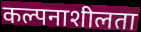
कल्पनाशीलता